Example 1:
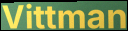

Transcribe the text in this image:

Vittman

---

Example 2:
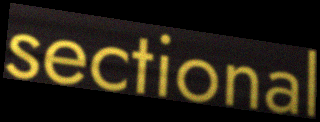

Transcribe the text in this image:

sectional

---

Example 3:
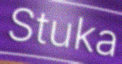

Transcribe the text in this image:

Stuka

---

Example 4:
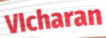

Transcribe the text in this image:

VIcharan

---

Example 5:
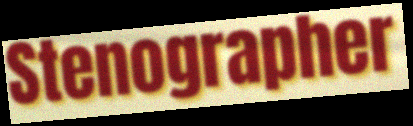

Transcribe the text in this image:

Stenographer